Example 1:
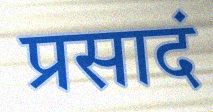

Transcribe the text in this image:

प्रसादं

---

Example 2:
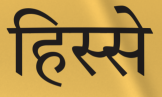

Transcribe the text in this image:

हिस्‍से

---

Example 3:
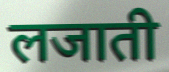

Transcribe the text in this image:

लजाती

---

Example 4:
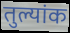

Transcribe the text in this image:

तुल्यांक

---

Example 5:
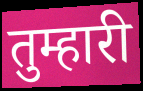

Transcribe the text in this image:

तुम्हारी